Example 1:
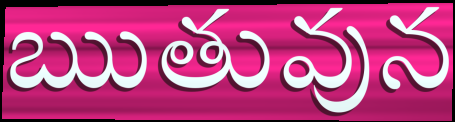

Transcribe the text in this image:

ఋతువున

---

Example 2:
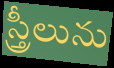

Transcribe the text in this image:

స్త్రీలును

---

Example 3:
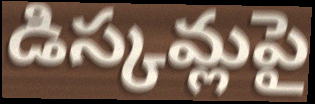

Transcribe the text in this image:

డిస్కమ్లపై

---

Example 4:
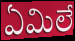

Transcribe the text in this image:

ఏమిలే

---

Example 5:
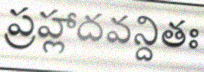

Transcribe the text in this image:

ప్రహ్లాదవన్దితః